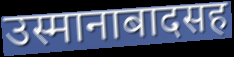
उस्मानाबादसह